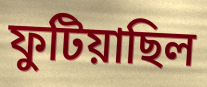
ফুটিয়াছিল